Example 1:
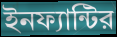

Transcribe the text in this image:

ইনফ্যান্টির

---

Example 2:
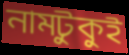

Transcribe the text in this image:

নামটুকুই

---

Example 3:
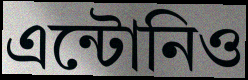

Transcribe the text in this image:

এন্টোনিও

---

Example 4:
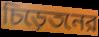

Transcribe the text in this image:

চিড়েতনের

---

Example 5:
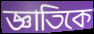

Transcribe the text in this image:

জ্ঞাতিকে